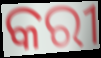
କରୀ